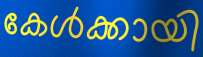
കേൾക്കായി